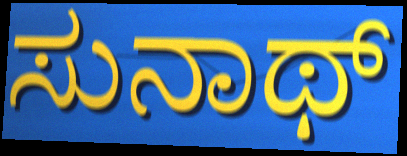
ಸುನಾಥ್